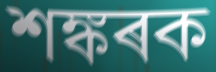
শঙ্কৰক